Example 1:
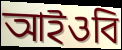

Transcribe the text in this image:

আইওবি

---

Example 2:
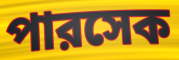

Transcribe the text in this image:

পারসেক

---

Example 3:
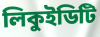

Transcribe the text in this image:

লিকুইডিটি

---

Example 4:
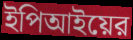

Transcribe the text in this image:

ইপিআইয়ের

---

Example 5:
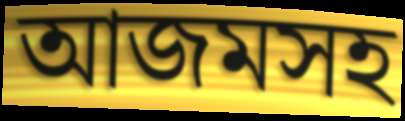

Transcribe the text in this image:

আজমসহ